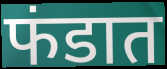
फंडात